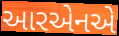
આરએનએ